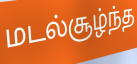
மடல்சூழ்ந்த